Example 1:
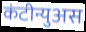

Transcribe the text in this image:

कंटीन्युअस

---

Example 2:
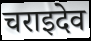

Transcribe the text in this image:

चराइदेव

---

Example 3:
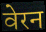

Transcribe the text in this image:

वेरन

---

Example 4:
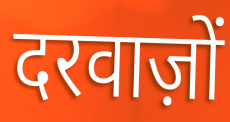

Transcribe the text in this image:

दरवाज़ों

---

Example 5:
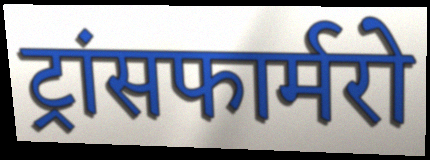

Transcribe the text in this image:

ट्रांसफार्मरो